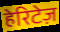
हेरिटेज़